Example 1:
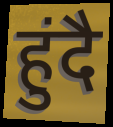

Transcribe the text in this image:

हुंदै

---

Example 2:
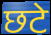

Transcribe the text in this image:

छटे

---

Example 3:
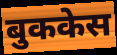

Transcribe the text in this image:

बुककेस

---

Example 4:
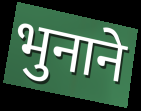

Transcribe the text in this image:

भुनाने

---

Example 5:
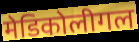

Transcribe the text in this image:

मेडिकोलीगल